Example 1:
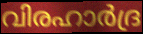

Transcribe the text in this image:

വിരഹാർദ്ര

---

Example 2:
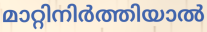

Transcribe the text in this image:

മാറ്റിനിർത്തിയാൽ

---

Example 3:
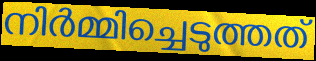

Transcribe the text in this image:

നിർമ്മിച്ചെടുത്തത്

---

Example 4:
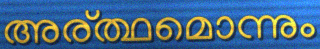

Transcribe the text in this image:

അര്ത്ഥമൊന്നും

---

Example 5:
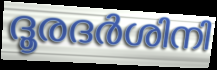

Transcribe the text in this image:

ദൂരദർശിനി